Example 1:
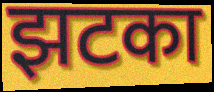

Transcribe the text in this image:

झटका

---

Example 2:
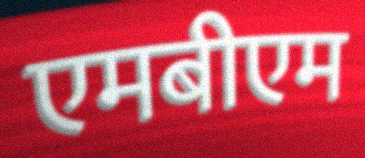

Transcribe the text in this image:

एमबीएम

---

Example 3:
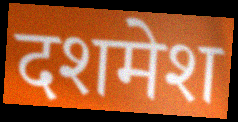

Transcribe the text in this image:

दशमेश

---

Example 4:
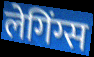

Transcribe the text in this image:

लेगिंग्स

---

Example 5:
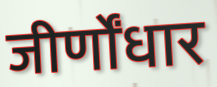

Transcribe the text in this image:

जीर्णोंधार